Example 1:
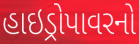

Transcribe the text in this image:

હાઇડ્રોપાવરનો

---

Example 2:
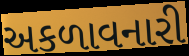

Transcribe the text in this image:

અકળાવનારી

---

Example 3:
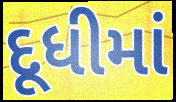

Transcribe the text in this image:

દૂધીમાં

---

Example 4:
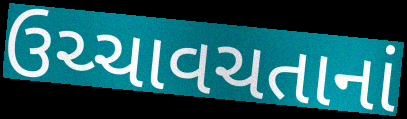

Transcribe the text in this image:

ઉચ્ચાવચતાનાં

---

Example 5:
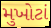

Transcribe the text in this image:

મુખોટાં